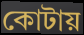
কোটায়